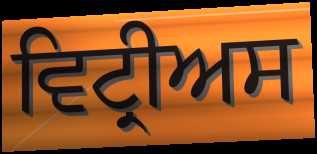
ਵਿਟ੍ਰੀਅਸ